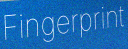
Fingerprint